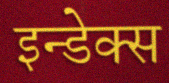
इन्डेक्स